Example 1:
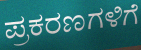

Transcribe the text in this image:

ಪ್ರಕರಣಗಳಿಗೆ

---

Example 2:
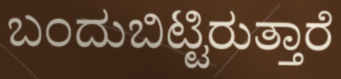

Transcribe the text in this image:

ಬಂದುಬಿಟ್ಟಿರುತ್ತಾರೆ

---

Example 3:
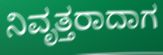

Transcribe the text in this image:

ನಿವೃತ್ತರಾದಾಗ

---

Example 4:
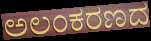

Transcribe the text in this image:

ಅಲಂಕರಣದ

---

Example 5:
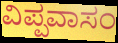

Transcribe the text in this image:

ವಿಪ್ಪವಾಸಂ